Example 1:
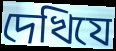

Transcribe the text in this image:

দেখিযে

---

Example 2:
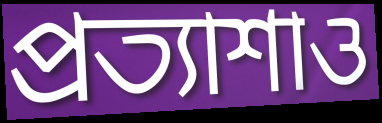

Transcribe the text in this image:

প্রত্যাশাও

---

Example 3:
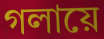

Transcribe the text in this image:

গলায়ে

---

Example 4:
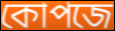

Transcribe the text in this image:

কোপজে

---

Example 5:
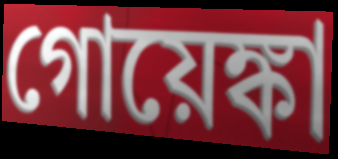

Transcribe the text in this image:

গোয়েঙ্কা